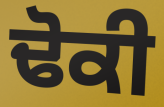
ਢੋਕੀ